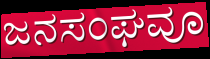
ಜನಸಂಘವೂ